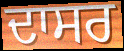
ਦਾਸਰ